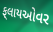
ફ્‌લાયઓવર